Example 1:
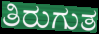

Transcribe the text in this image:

ತಿರುಗುತ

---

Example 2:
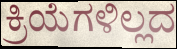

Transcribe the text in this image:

ಕ್ರಿಯೆಗಳಿಲ್ಲದ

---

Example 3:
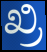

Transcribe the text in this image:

ಖ್ರಿ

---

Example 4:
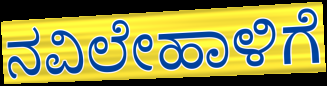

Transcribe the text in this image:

ನವಿಲೇಹಾಳಿಗೆ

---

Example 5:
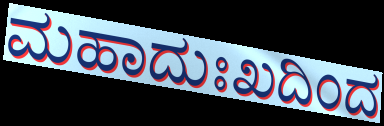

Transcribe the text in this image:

ಮಹಾದುಃಖದಿಂದ